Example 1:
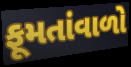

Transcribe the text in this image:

ફૂમતાંવાળો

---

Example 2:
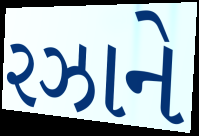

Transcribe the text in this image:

રઝાને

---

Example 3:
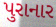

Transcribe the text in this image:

પુરાનાર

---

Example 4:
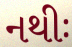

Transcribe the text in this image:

નથીઃ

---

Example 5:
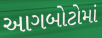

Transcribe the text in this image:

આગબોટોમાં